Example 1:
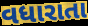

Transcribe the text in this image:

વધારાતા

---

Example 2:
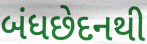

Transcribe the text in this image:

બંધછેદનથી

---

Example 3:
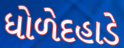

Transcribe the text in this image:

ધોળેદહાડે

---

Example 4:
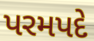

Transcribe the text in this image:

પરમપદે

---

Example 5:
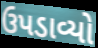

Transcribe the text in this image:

ઉપડાવ્યો